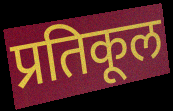
प्रतिकूल